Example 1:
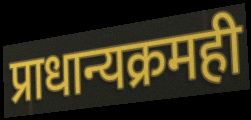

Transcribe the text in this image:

प्राधान्यक्रमही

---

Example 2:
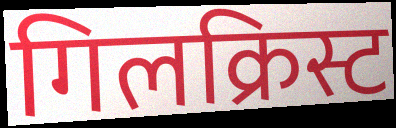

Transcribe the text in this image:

गिलक्रिस्‍ट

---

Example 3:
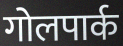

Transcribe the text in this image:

गोलपार्क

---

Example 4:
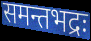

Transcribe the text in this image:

समन्तभद्रः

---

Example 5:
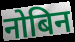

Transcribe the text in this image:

नोबिन